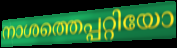
നാശത്തെപ്പറ്റിയോ